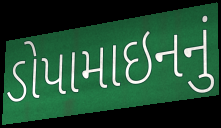
ડોપામાઇનનું